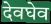
देवघेव